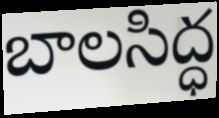
బాలసిద్ధ